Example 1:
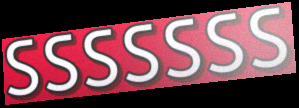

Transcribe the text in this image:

ऽऽऽऽऽऽऽ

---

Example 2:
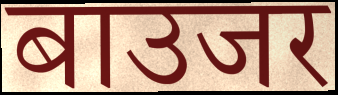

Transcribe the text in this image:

बाउजर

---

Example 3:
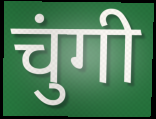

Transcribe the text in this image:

चुंगी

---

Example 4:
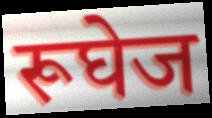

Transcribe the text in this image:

रूघेज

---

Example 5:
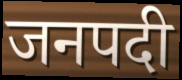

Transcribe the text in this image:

जनपदी